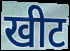
खीट